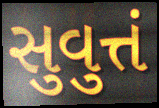
સુવુત્તં